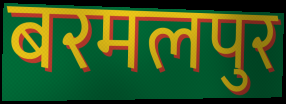
बरमलपुर